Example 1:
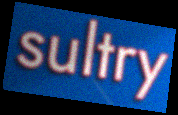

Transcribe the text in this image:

sultry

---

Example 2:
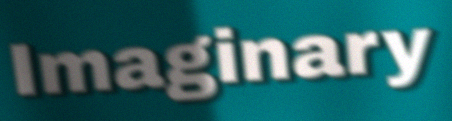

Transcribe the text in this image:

Imaginary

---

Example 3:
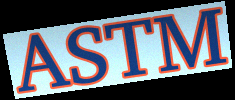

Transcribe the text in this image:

ASTM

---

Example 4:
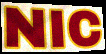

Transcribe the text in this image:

NIC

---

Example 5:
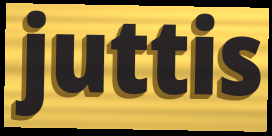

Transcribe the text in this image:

juttis